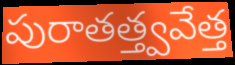
పురాతత్త్వవేత్త